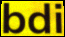
bdi